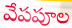
వేపపూల